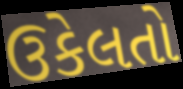
ઉકેલતો